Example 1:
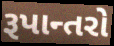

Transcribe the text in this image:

રૂપાન્તરો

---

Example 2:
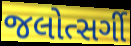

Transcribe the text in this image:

જલોત્સર્ગી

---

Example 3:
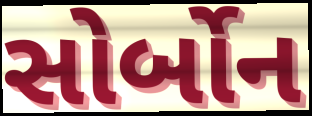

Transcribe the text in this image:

સોર્બોન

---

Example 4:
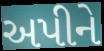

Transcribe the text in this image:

અપીને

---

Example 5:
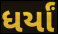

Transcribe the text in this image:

ધર્યાં